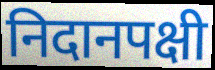
निदानपक्षी